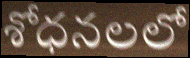
శోధనలలో